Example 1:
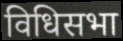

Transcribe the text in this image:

विधिसभा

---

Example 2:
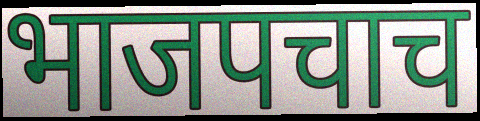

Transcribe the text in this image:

भाजपचाच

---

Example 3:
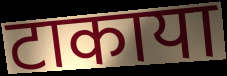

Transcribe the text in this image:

टाकाया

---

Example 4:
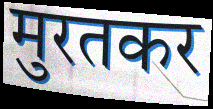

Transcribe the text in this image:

मुरतकर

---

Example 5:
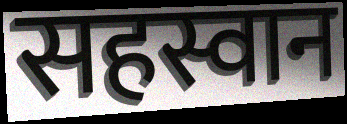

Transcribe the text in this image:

सहस्वान